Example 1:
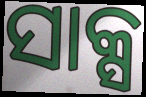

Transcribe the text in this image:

ସାକ୍ସ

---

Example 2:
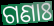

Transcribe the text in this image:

ଗଣାଃ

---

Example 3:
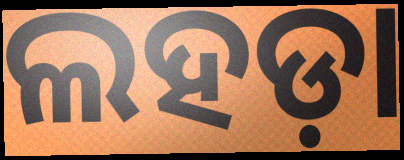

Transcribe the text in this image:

ଲହଡ଼ା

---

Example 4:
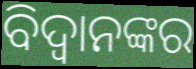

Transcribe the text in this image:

ବିଦ୍ୱାନଙ୍କର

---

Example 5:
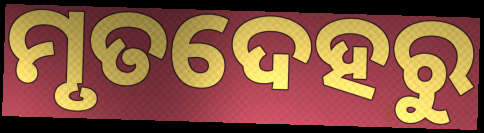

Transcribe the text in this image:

ମୃତଦେହରୁ